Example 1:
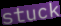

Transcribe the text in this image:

stuck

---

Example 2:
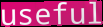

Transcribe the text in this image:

useful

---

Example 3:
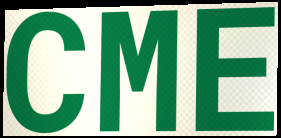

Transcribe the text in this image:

CME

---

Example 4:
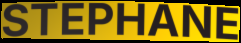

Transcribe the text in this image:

STEPHANE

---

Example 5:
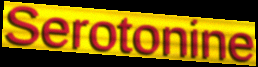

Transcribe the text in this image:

Serotonine